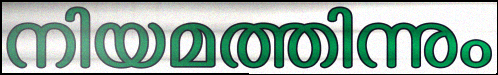
നിയമത്തിന്നും